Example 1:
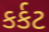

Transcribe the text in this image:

કર્કટ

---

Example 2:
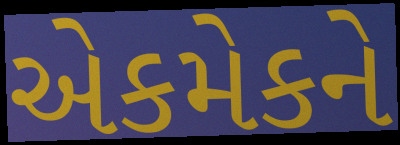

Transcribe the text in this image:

એકમેકને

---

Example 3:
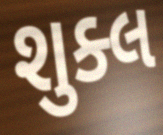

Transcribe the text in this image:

શુક્લ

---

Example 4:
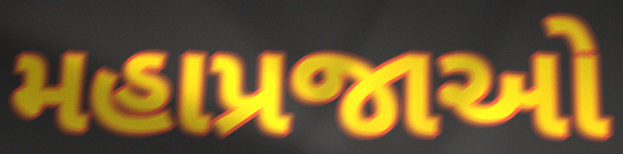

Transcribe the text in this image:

મહાપ્રજાઓ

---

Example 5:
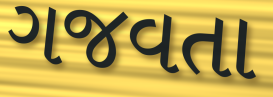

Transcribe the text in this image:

ગજવતા